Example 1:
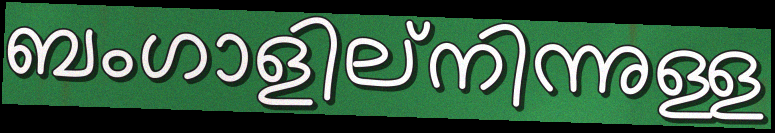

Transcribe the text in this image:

ബംഗാളില്നിന്നുള്ള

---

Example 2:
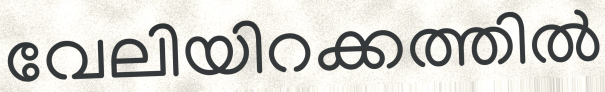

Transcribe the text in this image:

വേലിയിറക്കത്തിൽ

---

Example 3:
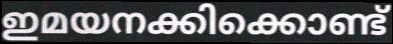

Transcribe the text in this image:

ഇമയനക്കിക്കൊണ്ട്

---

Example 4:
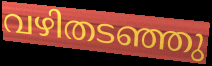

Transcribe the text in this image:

വഴിതടഞ്ഞു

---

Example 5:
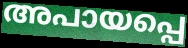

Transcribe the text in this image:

അപായപ്പെ